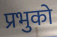
प्रभुको